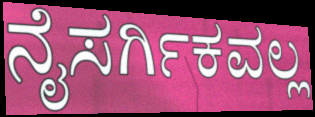
ನೈಸರ್ಗಿಕವಲ್ಲ